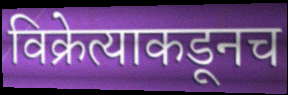
विक्रेत्याकडूनच